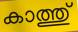
കാത്തു്